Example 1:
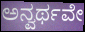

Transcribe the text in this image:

ಅನ್ವರ್ಥವೇ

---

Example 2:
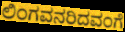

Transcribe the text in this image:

ಲಿಂಗವನರಿದವಂಗೆ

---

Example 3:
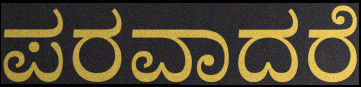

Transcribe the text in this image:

ಪರವಾದರೆ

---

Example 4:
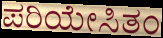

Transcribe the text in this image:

ಪರಿಯೇಸಿತಂ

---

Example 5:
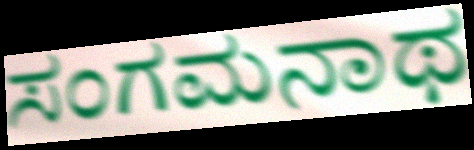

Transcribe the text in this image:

ಸಂಗಮನಾಥ